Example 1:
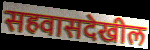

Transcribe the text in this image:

सहवासदेखील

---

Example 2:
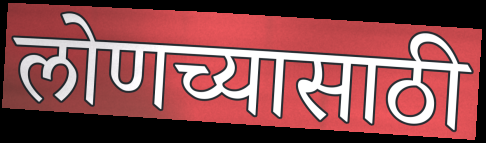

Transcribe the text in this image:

लोणच्यासाठी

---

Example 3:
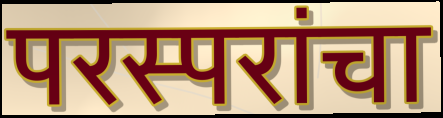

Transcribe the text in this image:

परस्परांचा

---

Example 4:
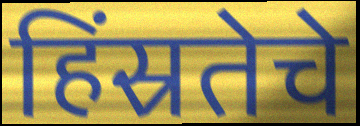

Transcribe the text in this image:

हिंस्रतेचे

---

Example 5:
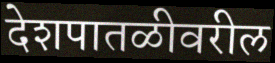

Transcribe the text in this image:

देशपातळीवरील